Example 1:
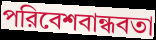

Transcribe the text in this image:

পরিবেশবান্ধবতা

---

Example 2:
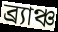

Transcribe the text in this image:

ব্র্যাঞ্চ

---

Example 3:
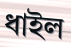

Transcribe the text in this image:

ধাইল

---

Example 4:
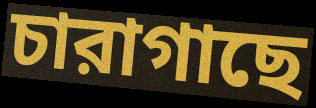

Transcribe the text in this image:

চারাগাছে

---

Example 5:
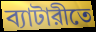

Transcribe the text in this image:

ব্যাটারীতে